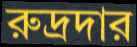
রুদ্রদার